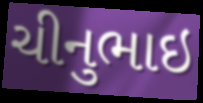
ચીનુભાઇ